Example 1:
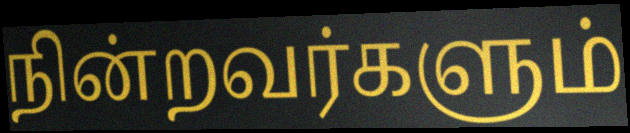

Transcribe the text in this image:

நின்றவர்களும்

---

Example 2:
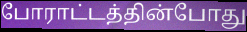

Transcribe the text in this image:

போராட்டத்தின்போது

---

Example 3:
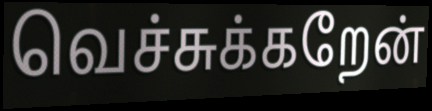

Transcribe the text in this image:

வெச்சுக்கறேன்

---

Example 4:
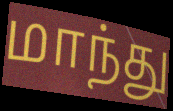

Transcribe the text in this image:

மாந்து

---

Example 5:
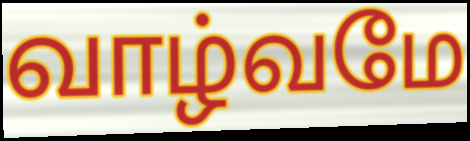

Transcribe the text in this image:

வாழ்வமே